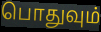
பொதுவும்